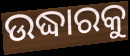
ଉଦ୍ଧାରକୁ